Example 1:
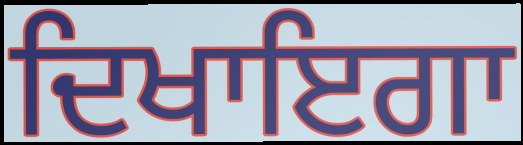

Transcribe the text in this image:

ਦਿਖਾਇਗਾ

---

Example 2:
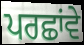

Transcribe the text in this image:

ਪਰਛਾਂਵੇ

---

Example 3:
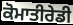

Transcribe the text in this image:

ਕੋਮਾਤੀਰੇਡੀ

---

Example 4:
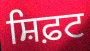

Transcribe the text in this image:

ਸ਼ਿਫ਼ਟ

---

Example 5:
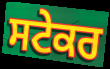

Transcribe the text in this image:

ਸਟੇਕਰ